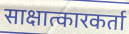
साक्षात्कारकर्ता